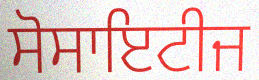
ਸੋਸਾਇਟੀਜ